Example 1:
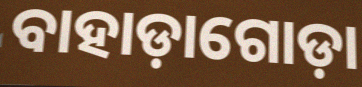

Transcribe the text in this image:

ବାହାଡ଼ାଗୋଡ଼ା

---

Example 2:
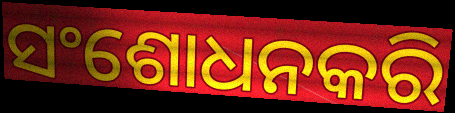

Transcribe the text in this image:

ସଂଶୋଧନକରି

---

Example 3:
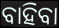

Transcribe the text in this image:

ବାହିବା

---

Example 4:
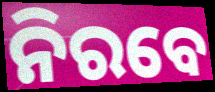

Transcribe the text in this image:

ନିରବେ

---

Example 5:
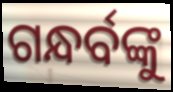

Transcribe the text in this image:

ଗନ୍ଧର୍ବଙ୍କୁ